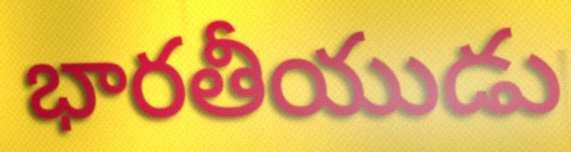
భారతీయుడు